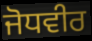
ਜੋਧਵੀਰ